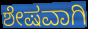
ಶೇಷವಾಗಿ